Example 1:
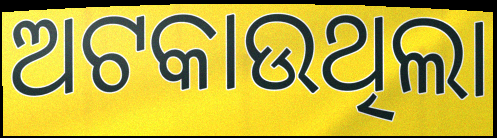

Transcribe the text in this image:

ଅଟକାଉଥିଲା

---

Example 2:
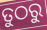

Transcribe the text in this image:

ତୁଠରୁ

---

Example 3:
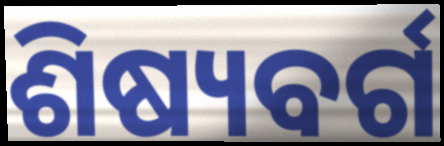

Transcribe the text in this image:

ଶିଷ୍ୟବର୍ଗ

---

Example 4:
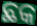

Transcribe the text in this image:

ଛକ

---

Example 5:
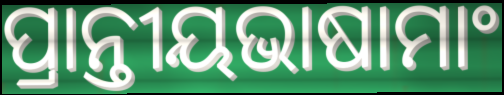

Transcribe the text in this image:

ପ୍ରାନ୍ତୀୟଭାଷାମାଂ